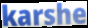
karshe